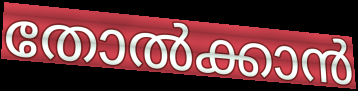
തോൽക്കാൻ